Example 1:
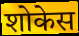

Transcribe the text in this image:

शोकेस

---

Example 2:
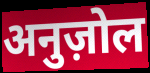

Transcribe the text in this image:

अनुज़ोल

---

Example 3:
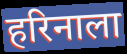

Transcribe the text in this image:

हरिनाला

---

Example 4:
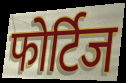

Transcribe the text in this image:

फोर्टिज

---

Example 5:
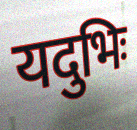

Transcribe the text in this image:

यदुभिः